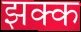
झक्क